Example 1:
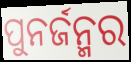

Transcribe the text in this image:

ପୁନର୍ଜନ୍ମର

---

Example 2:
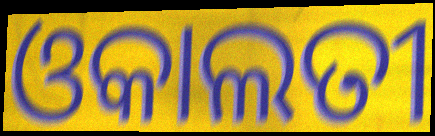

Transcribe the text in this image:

ଓକାଲତୀ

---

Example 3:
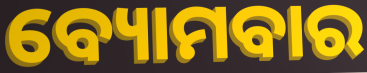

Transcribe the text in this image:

ବ୍ୟୋମବାର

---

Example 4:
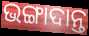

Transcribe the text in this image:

ଭଙ୍ଗାଦାନ୍ତ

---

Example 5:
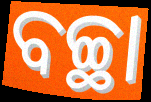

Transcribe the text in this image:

ବଚ୍ଛା